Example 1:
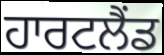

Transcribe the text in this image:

ਹਾਰਟਲੈਂਡ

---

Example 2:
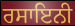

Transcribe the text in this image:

ਰਸਾਇਨੀ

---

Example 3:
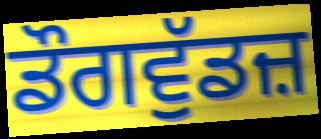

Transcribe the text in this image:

ਡੌਗਵੁੱਡਜ਼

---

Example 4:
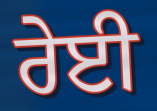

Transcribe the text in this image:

ਰੇਈ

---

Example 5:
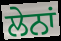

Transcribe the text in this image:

ਲੇਨਾਂ